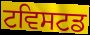
ਟਵਿਸਟਡ